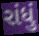
રાંધું